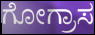
ಗೋಗ್ರಾಸ